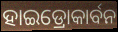
ହାଇଡ୍ରୋକାର୍ବନ